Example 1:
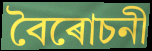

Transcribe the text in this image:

বৈৰোচনী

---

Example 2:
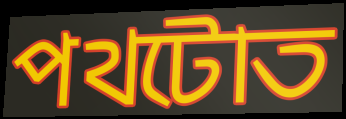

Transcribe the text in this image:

পথটোত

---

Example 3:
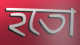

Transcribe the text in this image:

হতো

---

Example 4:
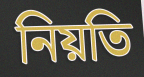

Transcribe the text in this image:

নিয়তি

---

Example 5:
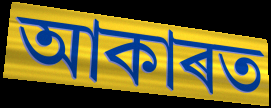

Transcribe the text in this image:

আকাৰত